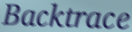
Backtrace